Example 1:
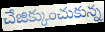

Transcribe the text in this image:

చేజిక్కుంచుకున్న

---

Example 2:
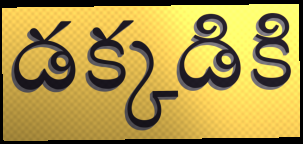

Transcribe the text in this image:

డక్కడికి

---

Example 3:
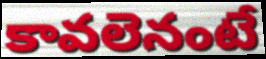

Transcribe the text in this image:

కావలెనంటే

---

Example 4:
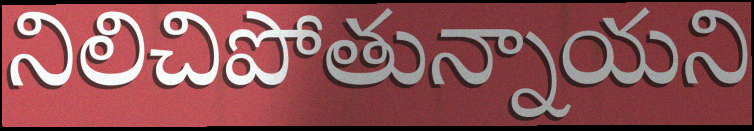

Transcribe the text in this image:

నిలిచిపోతున్నాయని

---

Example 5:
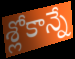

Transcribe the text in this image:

శ్లోకాన్నే